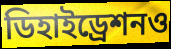
ডিহাইড্রেশনও